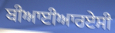
ਬੀਆਈਆਰਏਸੀ